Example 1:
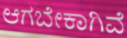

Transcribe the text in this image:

ಆಗಬೇಕಾಗಿವೆ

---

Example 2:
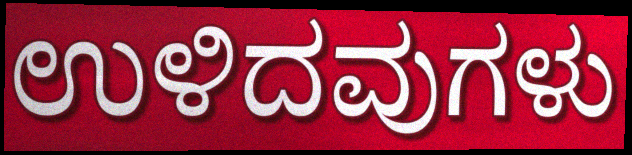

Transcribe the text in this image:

ಉಳಿದವುಗಳು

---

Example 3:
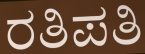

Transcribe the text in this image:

ರತಿಪತಿ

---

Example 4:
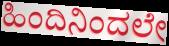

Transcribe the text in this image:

ಹಿಂದಿನಿಂದಲೇ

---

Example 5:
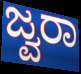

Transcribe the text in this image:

ಜ್ವರಾ